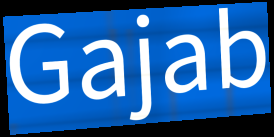
Gajab